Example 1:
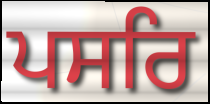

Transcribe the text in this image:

ਪਸਰਿ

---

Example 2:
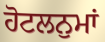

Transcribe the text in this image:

ਹੋਟਲਨੁਮਾਂ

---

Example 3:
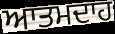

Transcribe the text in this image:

ਆਤਮਦਾਹ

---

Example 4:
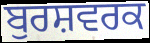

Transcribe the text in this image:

ਬੁਰਸ਼ਵਰਕ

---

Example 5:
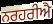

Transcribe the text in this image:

ਨਰਹਰੀਐ